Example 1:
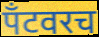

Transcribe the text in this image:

पँटवरच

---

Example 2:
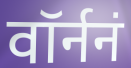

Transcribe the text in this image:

वॉर्ननं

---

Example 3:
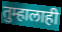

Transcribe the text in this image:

तुम्हालाही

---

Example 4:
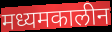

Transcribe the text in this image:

मध्यमकालीन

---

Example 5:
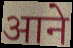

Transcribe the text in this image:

आने